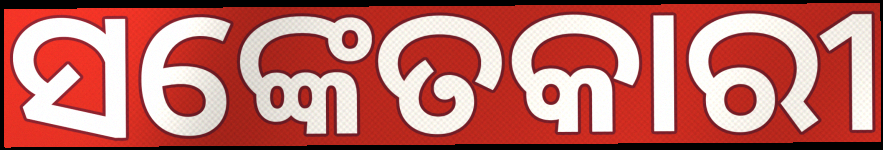
ସଙ୍କେତକାରୀ